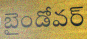
బైండోవర్